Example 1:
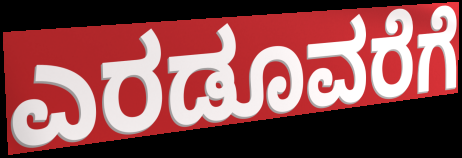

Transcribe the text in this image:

ಎರಡೂವರೆಗೆ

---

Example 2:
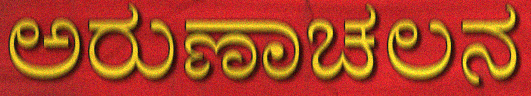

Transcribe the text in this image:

ಅರುಣಾಚಲನ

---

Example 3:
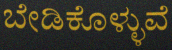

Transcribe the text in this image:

ಬೇಡಿಕೊಳ್ಳುವೆ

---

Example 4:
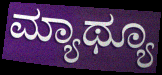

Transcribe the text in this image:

ಮ್ಯಾಥ್ಯೂ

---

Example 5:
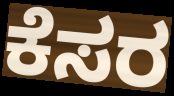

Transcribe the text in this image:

ಕೆಸರ